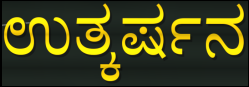
ಉತ್ಕರ್ಷನ